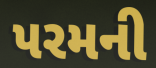
પરમની